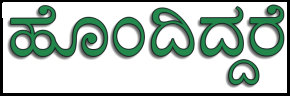
ಹೊಂದಿದ್ದರೆ